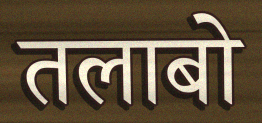
तलाबो